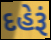
દહેરૂં